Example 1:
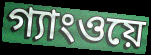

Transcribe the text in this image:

গ্যাংওয়ে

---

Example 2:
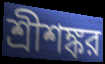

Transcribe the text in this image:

শ্রীশঙ্কর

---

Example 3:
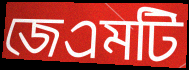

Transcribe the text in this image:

জেএমটি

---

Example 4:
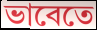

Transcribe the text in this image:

ভাবেতে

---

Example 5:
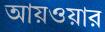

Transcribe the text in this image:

আয়ওয়ার